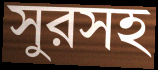
সুরসহ